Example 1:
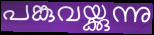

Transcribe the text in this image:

പങ്കുവയ്ക്കുന്നു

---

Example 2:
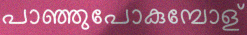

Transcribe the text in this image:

പാഞ്ഞുപോകുമ്പോള്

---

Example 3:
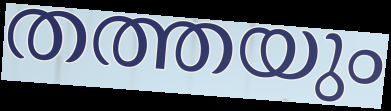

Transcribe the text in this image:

തത്തയും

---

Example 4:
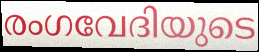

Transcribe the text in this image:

രംഗവേദിയുടെ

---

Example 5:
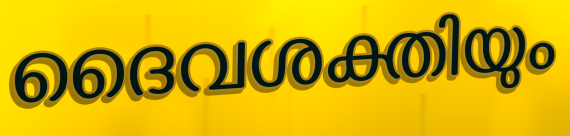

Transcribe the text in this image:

ദൈവശക്തിയും